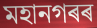
মহানগৰৰ